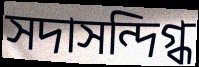
সদাসন্দিগ্ধ